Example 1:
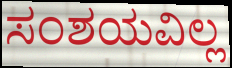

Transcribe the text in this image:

ಸಂಶಯವಿಲ್ಲ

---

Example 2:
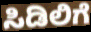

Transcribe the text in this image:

ಸಿಡಿಲಿಗೆ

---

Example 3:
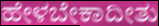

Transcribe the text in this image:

ಹೇಳಬೇಕಾದೀತು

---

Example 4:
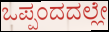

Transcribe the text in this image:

ಒಪ್ಪಂದದಲ್ಲೇ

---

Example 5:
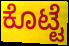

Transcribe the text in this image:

ಕೊಟ್ಟೆ